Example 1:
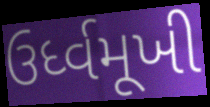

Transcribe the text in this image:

ઉર્ધ્વમૂખી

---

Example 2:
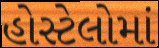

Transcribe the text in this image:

હોસ્ટેલોમાં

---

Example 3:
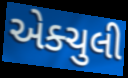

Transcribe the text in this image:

એક્ચુલી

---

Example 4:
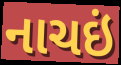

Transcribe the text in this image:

નાચઇં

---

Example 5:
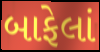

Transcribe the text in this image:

બાફેલાં